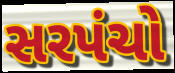
સરપંચો